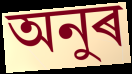
অনুৰ